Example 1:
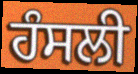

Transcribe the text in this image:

ਹੰਸਲੀ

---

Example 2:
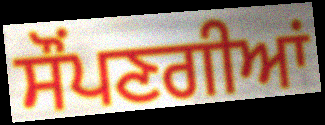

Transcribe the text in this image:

ਸੌਂਪਣਗੀਆਂ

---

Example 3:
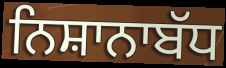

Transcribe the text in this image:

ਨਿਸ਼ਾਨਾਬੱਧ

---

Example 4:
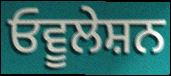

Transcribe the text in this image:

ਓਵੂਲੇਸ਼ਨ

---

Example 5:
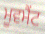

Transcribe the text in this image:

ਮੂਵਮੈਂਟ